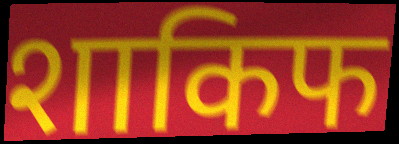
शाकिफ